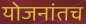
योजनांतच